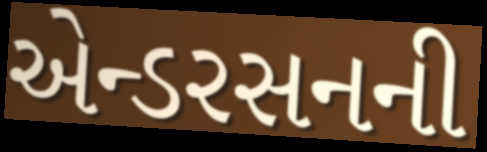
એન્ડરસનની